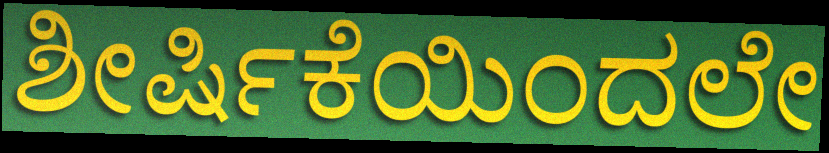
ಶೀರ್ಷಿಕೆಯಿಂದಲೇ